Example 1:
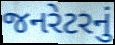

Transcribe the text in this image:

જનરેટરનું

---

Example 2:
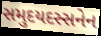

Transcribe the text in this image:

સમુદયદસ્સનેન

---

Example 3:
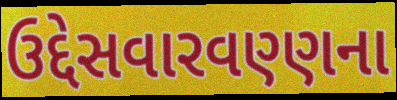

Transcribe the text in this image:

ઉદ્દેસવારવણ્ણના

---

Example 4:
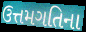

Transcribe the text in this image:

ઉત્તમગતિના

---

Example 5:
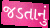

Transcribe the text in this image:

જડતાનું